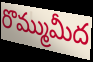
రొమ్ముమీద